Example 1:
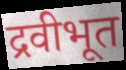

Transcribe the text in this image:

द्रवीभूत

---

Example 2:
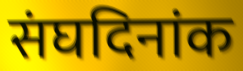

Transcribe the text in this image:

संघदिनांक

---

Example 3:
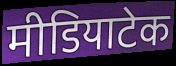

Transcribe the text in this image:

मीडियाटेक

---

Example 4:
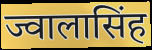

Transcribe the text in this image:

ज्वालासिंह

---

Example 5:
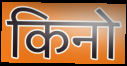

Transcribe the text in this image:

किनो